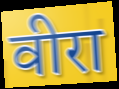
वीरा